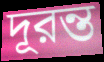
দূরন্ত